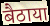
बैठाया